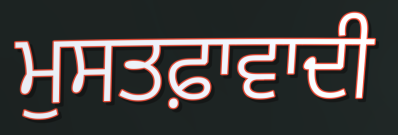
ਮੁਸਤਫ਼ਾਵਾਦੀ